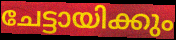
ചേട്ടായിക്കും